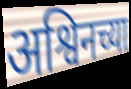
अश्विनच्या